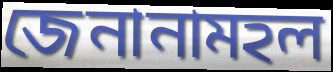
জেনানামহল